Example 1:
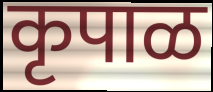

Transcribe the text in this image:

कृपाळ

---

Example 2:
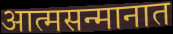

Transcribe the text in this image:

आत्मसन्मानात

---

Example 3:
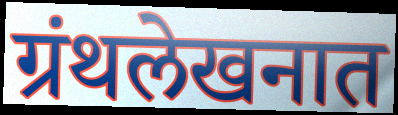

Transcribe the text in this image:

ग्रंथलेखनात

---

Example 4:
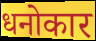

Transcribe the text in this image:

धनोकार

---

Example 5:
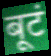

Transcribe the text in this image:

बूटं